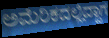
ಅಮೆರಿಕದಲ್ಲಿದ್ದಾಗ